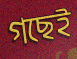
গছেই